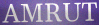
AMRUT